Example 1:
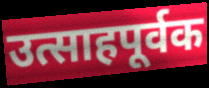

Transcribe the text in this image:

उत्साहपूर्वक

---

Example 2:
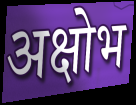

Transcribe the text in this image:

अक्षोभ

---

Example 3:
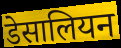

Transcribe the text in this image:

डेसालियन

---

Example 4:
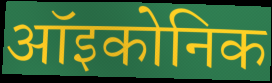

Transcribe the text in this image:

ऑइकोनिक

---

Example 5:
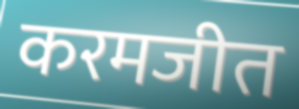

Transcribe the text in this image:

करमजीत